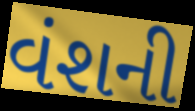
વંશની